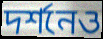
দর্শনেও